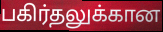
பகிர்தலுக்கான